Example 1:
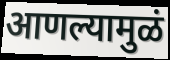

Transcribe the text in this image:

आणल्यामुळं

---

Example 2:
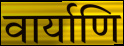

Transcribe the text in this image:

वार्याणि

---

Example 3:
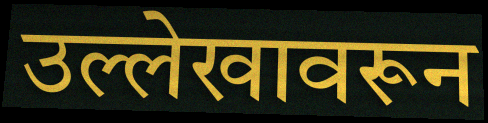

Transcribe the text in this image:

उल्लेखावरून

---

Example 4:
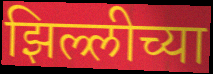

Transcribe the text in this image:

झिल्लीच्या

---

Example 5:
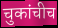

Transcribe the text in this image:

चुकांचीच